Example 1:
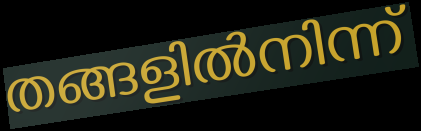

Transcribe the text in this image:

തങ്ങളിൽനിന്ന്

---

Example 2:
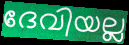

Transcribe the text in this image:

ദേവിയല്ല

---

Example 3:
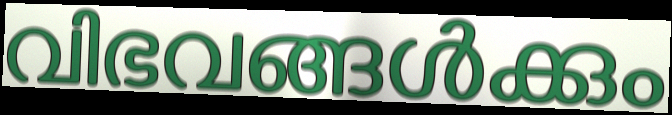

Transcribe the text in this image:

വിഭവങ്ങൾക്കും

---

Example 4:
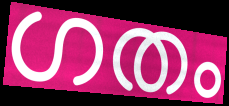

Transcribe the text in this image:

ഗതം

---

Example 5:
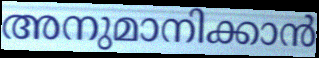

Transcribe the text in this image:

അനുമാനിക്കാൻ